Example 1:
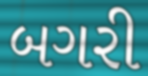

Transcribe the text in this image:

બગરી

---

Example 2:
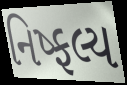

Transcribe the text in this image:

નિષ્ફલ્ય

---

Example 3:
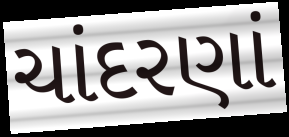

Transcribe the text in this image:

ચાંદરણાં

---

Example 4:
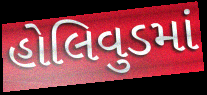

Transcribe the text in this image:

હોલિવુડમાં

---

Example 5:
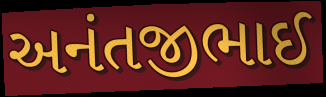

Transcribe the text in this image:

અનંતજીભાઈ